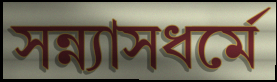
সন্ন্যাসধর্মে